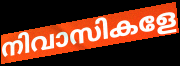
നിവാസികളേ